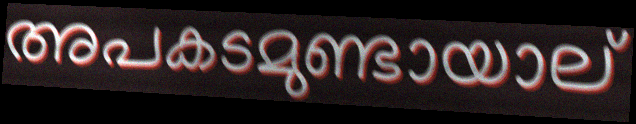
അപകടമുണ്ടായാല്